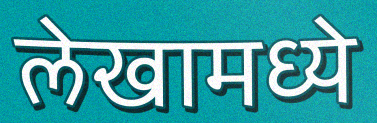
लेखामध्ये